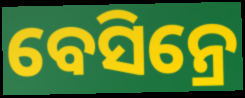
ବେସିନ୍ରେ